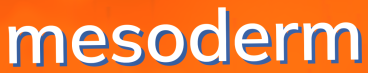
mesoderm